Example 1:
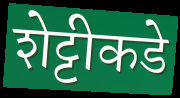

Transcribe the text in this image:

शेट्टीकडे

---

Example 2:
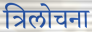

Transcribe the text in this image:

त्रिलोचना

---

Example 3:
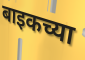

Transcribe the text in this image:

बाइकच्या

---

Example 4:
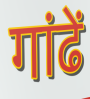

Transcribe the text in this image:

गांढें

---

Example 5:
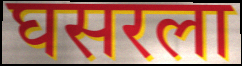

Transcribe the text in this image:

घसरला